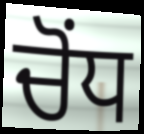
ਚੋਂਧ